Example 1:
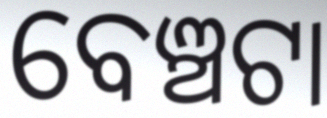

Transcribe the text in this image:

ବେଞ୍ଚଟା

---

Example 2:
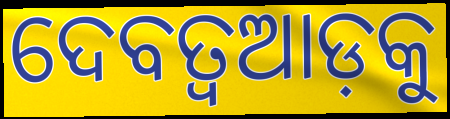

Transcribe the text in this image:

ଦେବତ୍ୱଆଡ଼କୁ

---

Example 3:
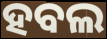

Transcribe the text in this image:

ହବଲ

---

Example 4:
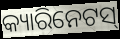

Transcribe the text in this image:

କ୍ୟାରିନେଟସ୍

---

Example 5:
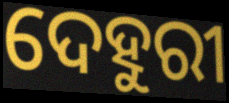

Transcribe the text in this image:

ଦେହୁରୀ